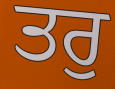
ਤਰੁ